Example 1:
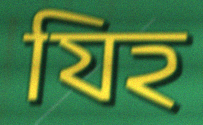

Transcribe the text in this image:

যিহ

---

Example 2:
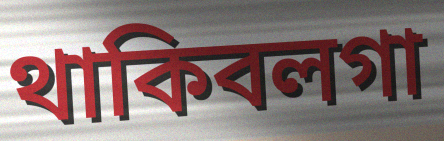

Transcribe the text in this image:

থাকিবলগা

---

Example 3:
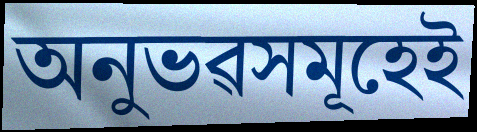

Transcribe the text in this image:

অনুভৱসমূহেই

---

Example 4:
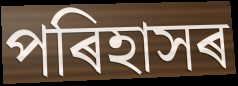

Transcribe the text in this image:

পৰিহাসৰ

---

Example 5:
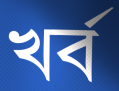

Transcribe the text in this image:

খৰ্ব